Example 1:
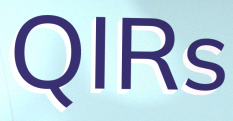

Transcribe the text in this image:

QIRs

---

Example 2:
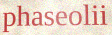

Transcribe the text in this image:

phaseolii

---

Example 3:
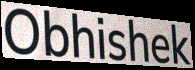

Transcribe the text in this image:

Obhishek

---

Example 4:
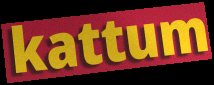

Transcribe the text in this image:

kattum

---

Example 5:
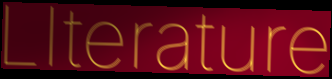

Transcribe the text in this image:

LIterature